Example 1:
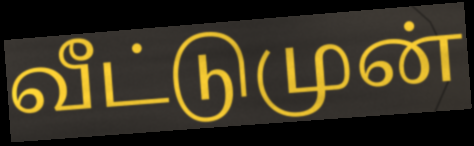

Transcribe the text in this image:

வீட்டுமுன்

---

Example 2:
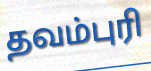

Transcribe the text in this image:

தவம்புரி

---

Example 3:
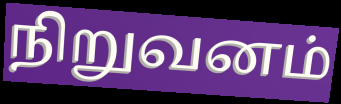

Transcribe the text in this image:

நிறுவனம்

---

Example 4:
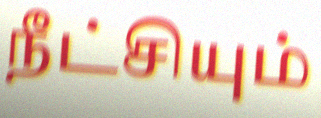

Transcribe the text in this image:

நீட்சியும்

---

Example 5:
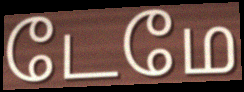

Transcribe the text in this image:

டேமே